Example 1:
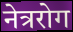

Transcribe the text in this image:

नेत्ररोग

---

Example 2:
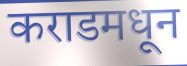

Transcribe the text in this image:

कराडमधून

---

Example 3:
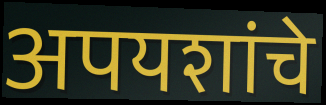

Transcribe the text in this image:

अपयशांचे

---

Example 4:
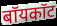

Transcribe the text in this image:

बॉयकॉट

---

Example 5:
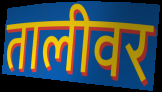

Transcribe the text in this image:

तालीवर